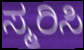
ಸ್ಮರಿಸಿ